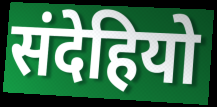
संदेहियो